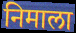
निमाला